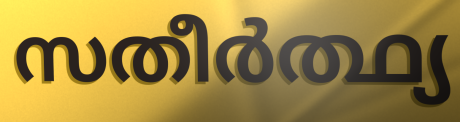
സതീർത്ഥ്യ